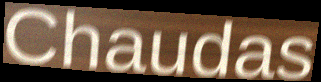
Chaudas